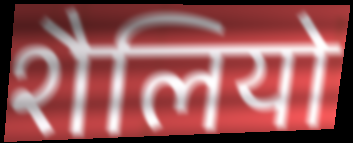
शैलियो